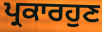
ਪ੍ਰਕਾਰਹੁਣ